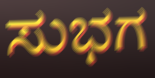
ಸುಭಗ